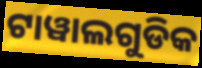
ଟାୱାଲଗୁଡିକ